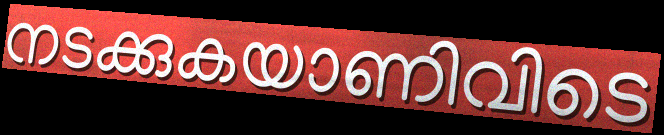
നടക്കുകയാണിവിടെ